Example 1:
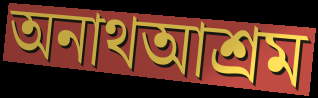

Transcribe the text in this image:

অনাথআশ্রম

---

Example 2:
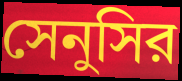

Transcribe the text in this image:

সেনুসির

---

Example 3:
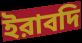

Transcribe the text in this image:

ইরাবদি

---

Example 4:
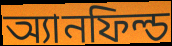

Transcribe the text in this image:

অ্যানফিল্ড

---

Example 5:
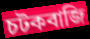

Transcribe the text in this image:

চটকবাজি